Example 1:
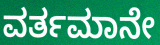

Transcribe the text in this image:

ವರ್ತಮಾನೇ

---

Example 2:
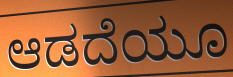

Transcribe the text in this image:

ಆಡದೆಯೂ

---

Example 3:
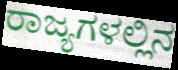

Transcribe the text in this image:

ರಾಜ್ಯಗಳಲ್ಲಿನ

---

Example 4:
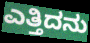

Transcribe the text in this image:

ಎತ್ತಿದನು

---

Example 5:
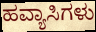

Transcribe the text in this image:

ಹವ್ಯಾಸಿಗಳು